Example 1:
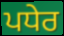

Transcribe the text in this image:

ਪਧੇਰ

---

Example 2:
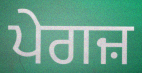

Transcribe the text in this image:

ਪੇਗਜ਼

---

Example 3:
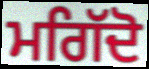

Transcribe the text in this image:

ਮਗਿੱਦੋ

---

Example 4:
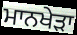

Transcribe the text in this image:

ਮਾਨਖੇੜਾ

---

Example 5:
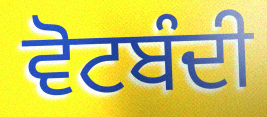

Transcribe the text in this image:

ਵੋਟਬੰਦੀ